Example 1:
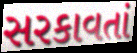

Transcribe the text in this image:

સરકાવતાં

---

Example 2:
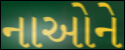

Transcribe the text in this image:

નાઓને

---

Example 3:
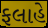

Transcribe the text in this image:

ફલાહે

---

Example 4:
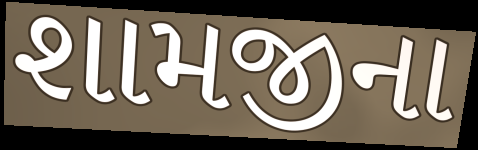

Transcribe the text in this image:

શામજીના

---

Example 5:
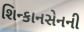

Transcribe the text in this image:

શિન્કાનસેનની